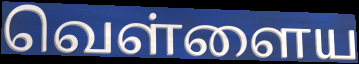
வெள்ளைய